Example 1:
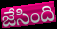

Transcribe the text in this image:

జేసింది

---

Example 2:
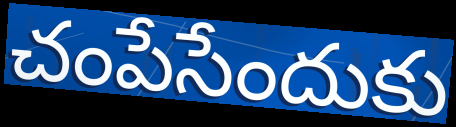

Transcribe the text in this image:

చంపేసేందుకు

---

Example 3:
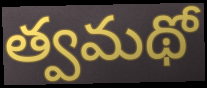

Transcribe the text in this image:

త్వమథో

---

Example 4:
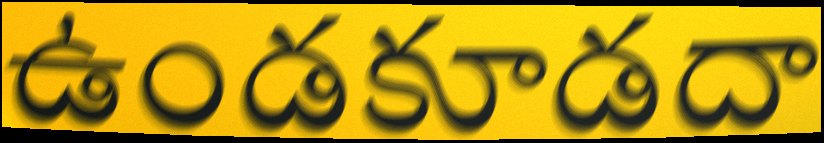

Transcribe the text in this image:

ఉండకూడదా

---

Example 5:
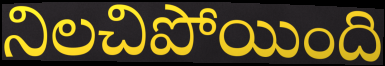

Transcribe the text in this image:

నిలచిపోయింది